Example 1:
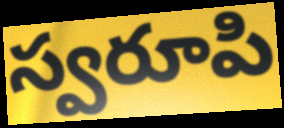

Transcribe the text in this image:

స్వరూపి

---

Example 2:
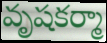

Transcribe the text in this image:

వృషకర్మా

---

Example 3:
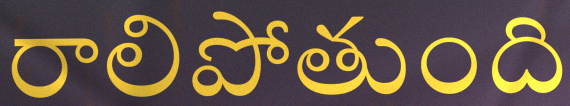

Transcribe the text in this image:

రాలిపోతుంది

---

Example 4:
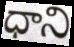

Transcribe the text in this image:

ధాని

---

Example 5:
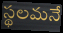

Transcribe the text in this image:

స్థలమనే